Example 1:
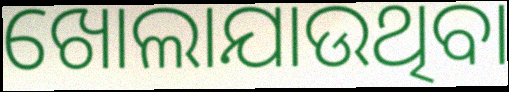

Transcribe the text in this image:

ଖୋଲାଯାଉଥିବା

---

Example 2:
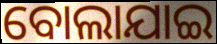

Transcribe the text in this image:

ବୋଲାଯାଇ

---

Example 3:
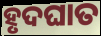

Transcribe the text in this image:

ହୃଦଘାତ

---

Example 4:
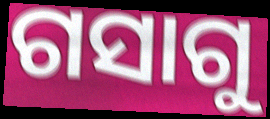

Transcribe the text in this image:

ଗସାଗୁ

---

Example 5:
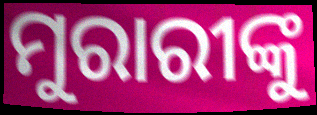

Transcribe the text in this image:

ମୁରାରୀଙ୍କୁ